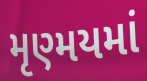
મૃણ્મયમાં